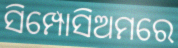
ସିମ୍ପୋସିଅମରେ